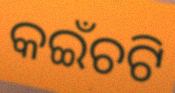
କଇଁଚଟି